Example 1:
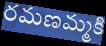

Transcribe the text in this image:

రమణమ్మకి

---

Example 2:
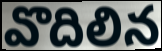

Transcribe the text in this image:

వొదిలిన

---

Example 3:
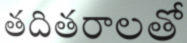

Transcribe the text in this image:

తదితరాలతో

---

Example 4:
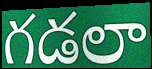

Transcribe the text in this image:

గడలా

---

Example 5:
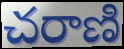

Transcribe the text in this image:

చరాణి